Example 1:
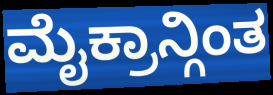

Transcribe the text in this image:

ಮೈಕ್ರಾನ್ಗಿಂತ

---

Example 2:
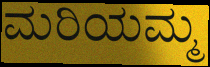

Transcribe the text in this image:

ಮರಿಯಮ್ಮ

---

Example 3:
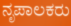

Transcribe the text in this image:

ನೃಪಾಲಕರು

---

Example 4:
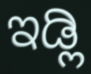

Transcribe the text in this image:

ಇಡ್ಲಿ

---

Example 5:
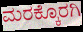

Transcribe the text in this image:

ಮರಕ್ಕೊರಗಿ